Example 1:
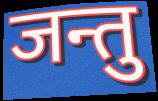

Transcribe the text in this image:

जन्तु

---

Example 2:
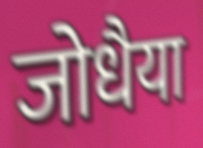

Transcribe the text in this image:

जोधैया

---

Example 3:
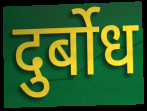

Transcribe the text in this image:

दुर्बोध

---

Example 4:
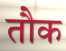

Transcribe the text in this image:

तौक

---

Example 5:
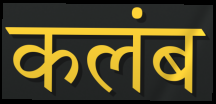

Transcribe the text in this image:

कलंब